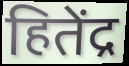
हितेंद्र